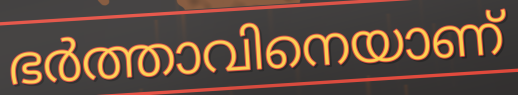
ഭർത്താവിനെയാണ്